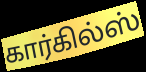
கார்கில்ஸ்